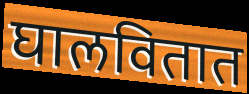
घालवितात